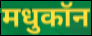
मधुकॉन